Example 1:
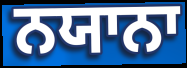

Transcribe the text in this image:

ਨਯਾਨਾ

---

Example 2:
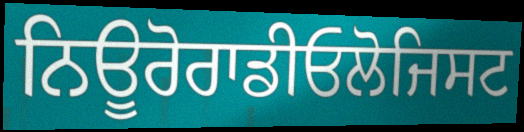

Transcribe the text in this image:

ਨਿਊਰੋਰਾਡੀਓਲੋਜਿਸਟ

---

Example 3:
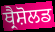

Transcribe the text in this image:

ਥ੍ਰੈਸ਼ੋਲਡ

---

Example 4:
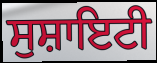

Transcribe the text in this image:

ਸੁਸ਼ਾਇਟੀ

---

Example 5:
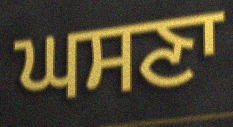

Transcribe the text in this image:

ਘਸਣਾ